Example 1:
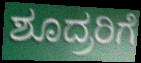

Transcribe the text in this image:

ಶೂದ್ರರಿಗೆ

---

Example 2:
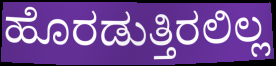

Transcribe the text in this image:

ಹೊರಡುತ್ತಿರಲಿಲ್ಲ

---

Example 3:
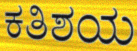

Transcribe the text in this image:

ಕತಿಶಯ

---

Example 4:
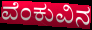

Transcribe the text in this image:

ವೆಂಕುವಿನ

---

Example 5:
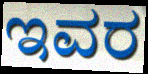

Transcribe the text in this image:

ಇವರ